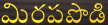
మిరపపొడి